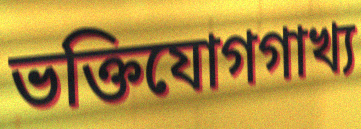
ভক্তিযোগগাখ্য